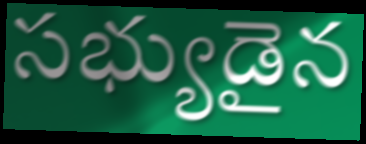
సభ్యుడైన